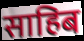
साहिब